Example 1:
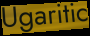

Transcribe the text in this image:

Ugaritic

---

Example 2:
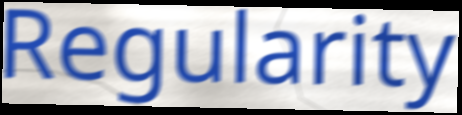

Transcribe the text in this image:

Regularity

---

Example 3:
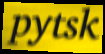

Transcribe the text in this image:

pytsk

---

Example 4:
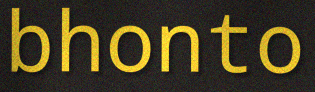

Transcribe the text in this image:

bhonto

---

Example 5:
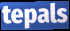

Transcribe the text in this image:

tepals